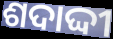
ଶଦାଦ୍ଦୀ